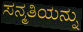
ಸನ್ಮತಿಯನ್ನು